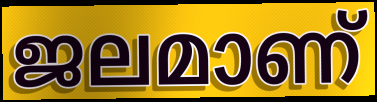
ജലമാണ്